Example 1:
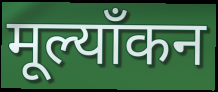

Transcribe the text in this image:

मूल्याँकन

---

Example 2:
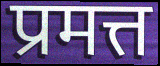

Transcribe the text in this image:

प्रमत्त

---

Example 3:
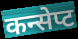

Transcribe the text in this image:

कन्सेप्ट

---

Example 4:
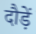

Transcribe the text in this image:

दौड़ें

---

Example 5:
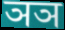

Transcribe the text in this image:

ञञ